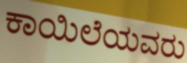
ಕಾಯಿಲೆಯವರು